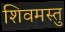
शिवमस्तु